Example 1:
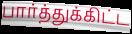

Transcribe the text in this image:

பார்த்துக்கிட்ட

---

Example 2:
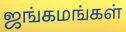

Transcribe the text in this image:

ஜங்கமங்கள்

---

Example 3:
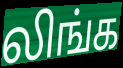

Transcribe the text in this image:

லிங்க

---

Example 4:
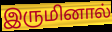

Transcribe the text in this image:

இருமினால்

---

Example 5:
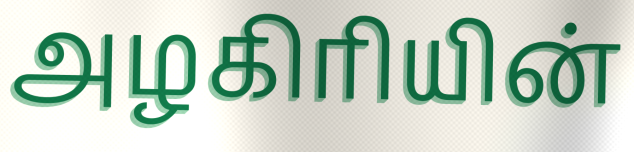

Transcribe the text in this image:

அழகிரியின்